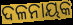
ଦଳନାୟକ